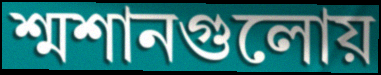
শ্মশানগুলোয়